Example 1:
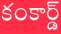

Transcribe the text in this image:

కంకార్డ్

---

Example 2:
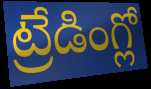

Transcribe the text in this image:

ట్రేడింగ్లో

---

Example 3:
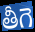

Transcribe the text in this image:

తీగె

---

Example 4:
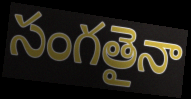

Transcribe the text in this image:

సంగతైనా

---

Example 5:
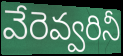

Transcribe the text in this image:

వేరెవ్వరినీ